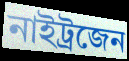
নাইট্ৰজেন